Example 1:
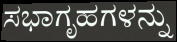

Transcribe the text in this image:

ಸಭಾಗೃಹಗಳನ್ನು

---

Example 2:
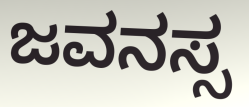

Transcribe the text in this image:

ಜವನಸ್ಸ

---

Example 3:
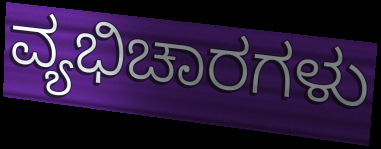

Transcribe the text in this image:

ವ್ಯಭಿಚಾರಗಳು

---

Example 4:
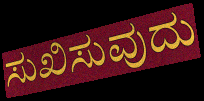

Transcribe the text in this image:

ಸುಖಿಸುವುದು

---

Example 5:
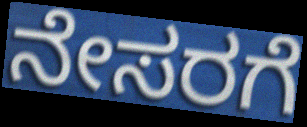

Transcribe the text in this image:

ನೇಸರಗೆ